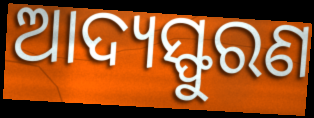
ଆଦ୍ୟସ୍ଫୁରଣ